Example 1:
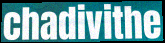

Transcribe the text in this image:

chadivithe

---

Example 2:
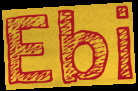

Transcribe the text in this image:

Ebi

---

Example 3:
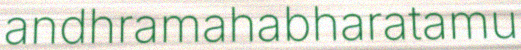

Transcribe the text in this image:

andhramahabharatamu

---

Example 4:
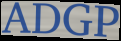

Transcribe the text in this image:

ADGP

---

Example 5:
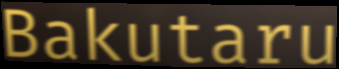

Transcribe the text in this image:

Bakutaru